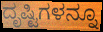
ದೃಷ್ಟಿಗಳನ್ನೂ